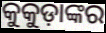
କୁକୁଡ଼ାଙ୍କର